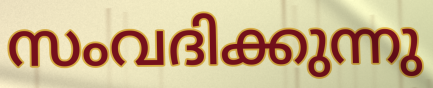
സംവദിക്കുന്നു